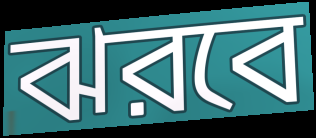
ঝরবে